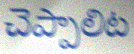
చెప్పాలిట